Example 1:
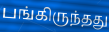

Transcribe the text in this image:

பங்கிருந்தது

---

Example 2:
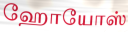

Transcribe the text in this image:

ஹோயோஸ்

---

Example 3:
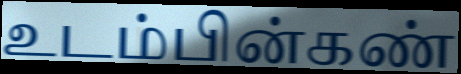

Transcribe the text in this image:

உடம்பின்கண்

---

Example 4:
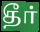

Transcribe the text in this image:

தீர்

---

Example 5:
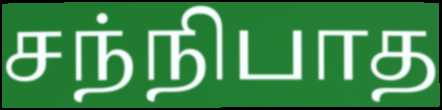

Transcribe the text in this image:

சந்நிபாத